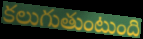
కలుగుతుంటుంది